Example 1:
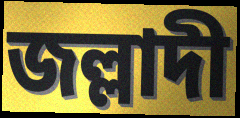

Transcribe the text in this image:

জল্লাদী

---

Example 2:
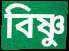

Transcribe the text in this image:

বিষ্ণু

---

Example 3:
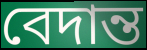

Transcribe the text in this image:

বেদান্ত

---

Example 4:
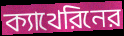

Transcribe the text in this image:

ক্যাথেরিনের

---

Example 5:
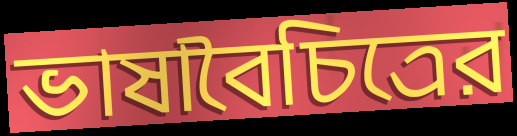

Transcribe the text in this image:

ভাষাবৈচিত্রের